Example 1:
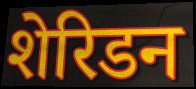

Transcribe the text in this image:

शेरिडन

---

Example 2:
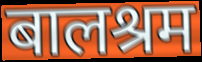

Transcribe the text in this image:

बालश्रम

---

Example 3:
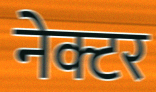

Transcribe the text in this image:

नेक्टर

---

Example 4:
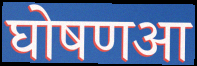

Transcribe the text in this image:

घोषणआ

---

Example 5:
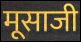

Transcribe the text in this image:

मूसाजी